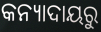
କନ୍ୟାଦାୟରୁ